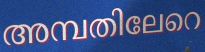
അമ്പതിലേറെ